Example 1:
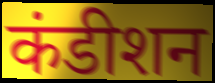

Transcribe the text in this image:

कंडीशन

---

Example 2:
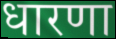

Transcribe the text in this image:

धारणा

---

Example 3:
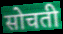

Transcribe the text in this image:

सोचती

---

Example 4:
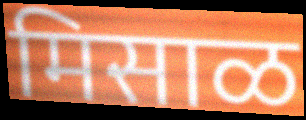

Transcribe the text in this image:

मिसाळ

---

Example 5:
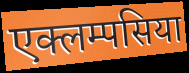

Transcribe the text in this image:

एक्लम्पसिया